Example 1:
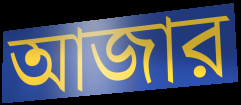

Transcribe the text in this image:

আজার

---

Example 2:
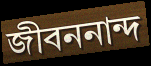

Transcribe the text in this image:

জীবননান্দ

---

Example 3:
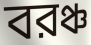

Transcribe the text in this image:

বরঞ্চ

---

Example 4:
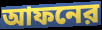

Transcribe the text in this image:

আফনের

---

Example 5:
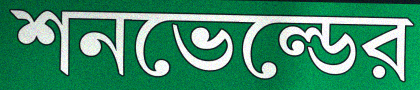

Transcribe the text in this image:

শনভেল্ডের